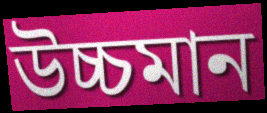
উচ্চমান